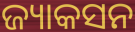
ଜ୍ୟାକସନ